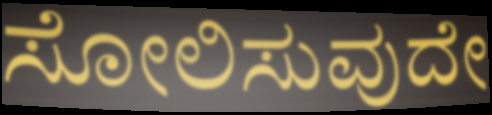
ಸೋಲಿಸುವುದೇ